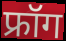
फ्रॉग